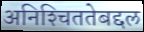
अनिश्चिततेबद्दल